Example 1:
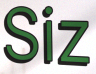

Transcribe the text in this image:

Siz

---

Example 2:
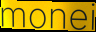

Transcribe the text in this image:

monei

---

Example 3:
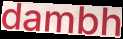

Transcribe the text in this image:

dambh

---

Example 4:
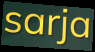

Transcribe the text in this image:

sarja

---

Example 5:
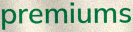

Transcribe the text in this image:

premiums